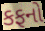
કફનો